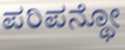
ಪರಿಪನ್ಥೋ